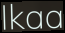
Ikaa